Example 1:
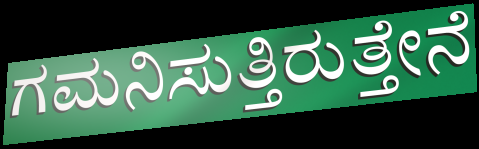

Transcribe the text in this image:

ಗಮನಿಸುತ್ತಿರುತ್ತೇನೆ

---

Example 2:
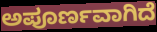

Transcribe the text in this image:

ಅಪೂರ್ಣವಾಗಿದೆ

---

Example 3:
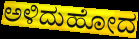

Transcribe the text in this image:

ಅಳಿದುಹೋದ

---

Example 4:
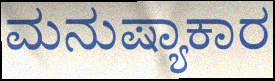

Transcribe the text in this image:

ಮನುಷ್ಯಾಕಾರ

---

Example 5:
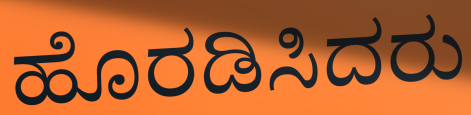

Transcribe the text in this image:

ಹೊರಡಿಸಿದರು